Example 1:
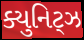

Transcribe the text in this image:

ક્યુનિટ્ઝ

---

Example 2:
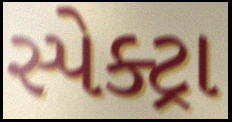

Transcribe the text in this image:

સ્પેક્ટ્રા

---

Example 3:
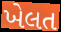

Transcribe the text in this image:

ખેલત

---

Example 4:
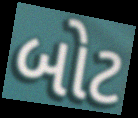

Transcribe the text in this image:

બોટ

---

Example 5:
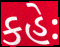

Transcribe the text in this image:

કહેઃ